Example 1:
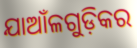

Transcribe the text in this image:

ଯାଆଁଳଗୁଡ଼ିକର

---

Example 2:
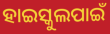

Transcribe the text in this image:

ହାଇସ୍କୁଲପାଇଁ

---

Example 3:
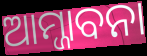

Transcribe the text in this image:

ଆମ୍ଜାବନା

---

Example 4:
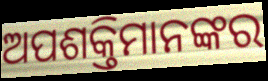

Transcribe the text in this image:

ଅପଶକ୍ତିମାନଙ୍କର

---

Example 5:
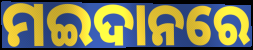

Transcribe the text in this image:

ମଇଦାନରେ